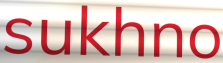
sukhno